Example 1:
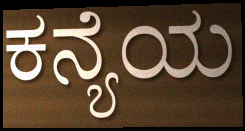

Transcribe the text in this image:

ಕನ್ಯೆಯ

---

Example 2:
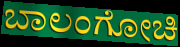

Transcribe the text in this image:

ಬಾಲಂಗೋಚಿ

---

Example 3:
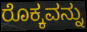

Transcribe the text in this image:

ರೊಕ್ಕವನ್ನು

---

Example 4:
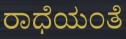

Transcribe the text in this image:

ರಾಧೆಯಂತೆ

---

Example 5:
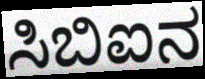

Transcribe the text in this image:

ಸಿಬಿಐನ